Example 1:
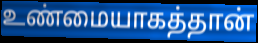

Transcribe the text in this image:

உண்மையாகத்தான்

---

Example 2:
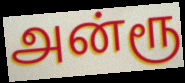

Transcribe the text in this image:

அன்ரூ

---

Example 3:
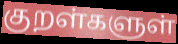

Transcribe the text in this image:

குறள்களுள்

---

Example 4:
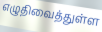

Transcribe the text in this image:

எழுதிவைத்துள்ள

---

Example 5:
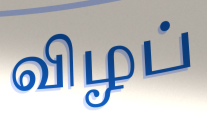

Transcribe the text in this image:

விழப்